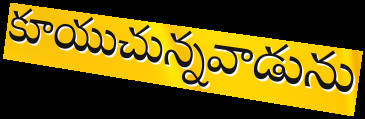
కూయుచున్నవాడును